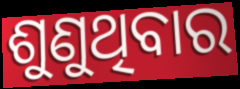
ଶୁଣୁଥିବାର